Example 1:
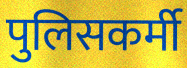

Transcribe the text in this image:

पुलिसकर्मी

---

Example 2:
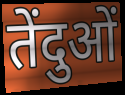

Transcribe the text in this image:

तेंदुओं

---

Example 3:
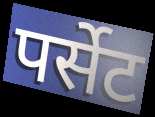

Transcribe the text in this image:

पर्सेट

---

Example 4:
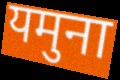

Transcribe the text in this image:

यमुना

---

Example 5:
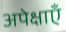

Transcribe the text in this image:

अपेक्षाएँ